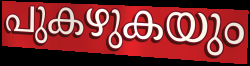
പുകഴുകയും